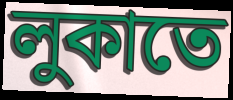
লুকাতে